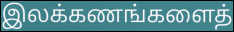
இலக்கணங்களைத்